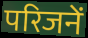
परिजनें